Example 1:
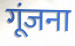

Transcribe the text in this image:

गूंजना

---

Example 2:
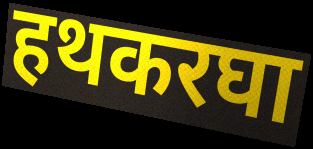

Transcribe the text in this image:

हथकरघा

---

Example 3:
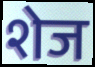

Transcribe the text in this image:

शेज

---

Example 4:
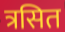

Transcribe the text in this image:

त्रसित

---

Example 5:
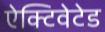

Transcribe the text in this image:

ऐक्टिवेटेड